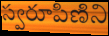
స్వరూపిణిని